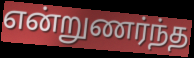
என்றுணர்ந்த